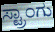
ಸ್ಟ್ರಾಂಗು